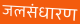
जलसंधारण